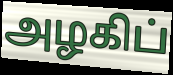
அழகிப்